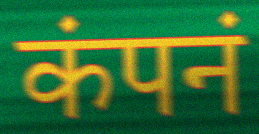
कंपनं